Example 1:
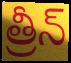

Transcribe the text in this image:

త్రీన్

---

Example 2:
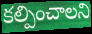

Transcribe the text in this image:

కల్పించాలని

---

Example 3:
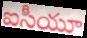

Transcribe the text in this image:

ఐసీయూ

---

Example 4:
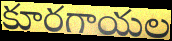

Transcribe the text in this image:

కూరగాయల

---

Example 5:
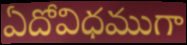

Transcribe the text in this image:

ఏదోవిధముగా